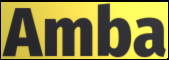
Amba